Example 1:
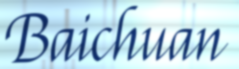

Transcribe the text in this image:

Baichuan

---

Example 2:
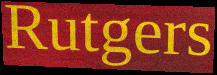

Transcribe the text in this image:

Rutgers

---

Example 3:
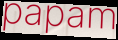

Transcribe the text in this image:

papam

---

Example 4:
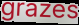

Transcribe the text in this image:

grazes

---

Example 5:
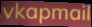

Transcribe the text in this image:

vkapmail